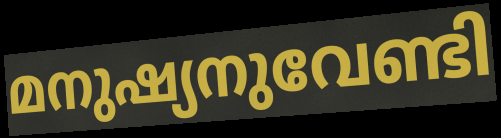
മനുഷ്യനുവേണ്ടി